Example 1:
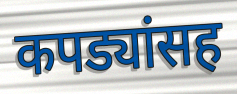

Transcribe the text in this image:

कपड्यांसह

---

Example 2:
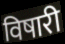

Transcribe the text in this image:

विषारी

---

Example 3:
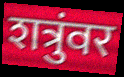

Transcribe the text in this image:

शत्रुंवर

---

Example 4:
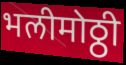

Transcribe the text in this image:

भलीमोठ्ठी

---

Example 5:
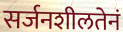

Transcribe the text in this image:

सर्जनशीलतेनं